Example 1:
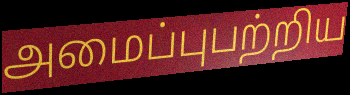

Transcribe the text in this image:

அமைப்புபற்றிய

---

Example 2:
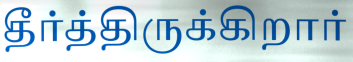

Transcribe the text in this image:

தீர்த்திருக்கிறார்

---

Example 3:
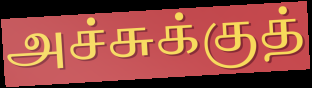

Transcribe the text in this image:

அச்சுக்குத்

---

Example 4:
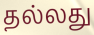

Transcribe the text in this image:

தல்லது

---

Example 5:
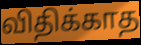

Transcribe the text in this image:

விதிக்காத